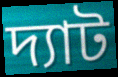
দ্যাট